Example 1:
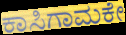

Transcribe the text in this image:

ಕಾಸಿಗಾಮಕೇ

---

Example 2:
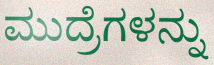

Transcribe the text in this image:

ಮುದ್ರೆಗಳನ್ನು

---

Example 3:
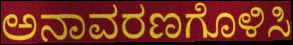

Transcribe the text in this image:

ಅನಾವರಣಗೊಳಿಸಿ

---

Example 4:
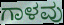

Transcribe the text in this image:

ಗಾಳವು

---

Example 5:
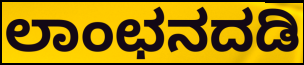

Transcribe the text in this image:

ಲಾಂಛನದಡಿ